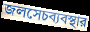
জলসেচব্যবস্থার